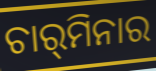
ଚାର୍‌ମିନାର